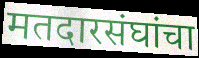
मतदारसंघांचा